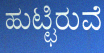
ಹುಟ್ಟಿರುವೆ